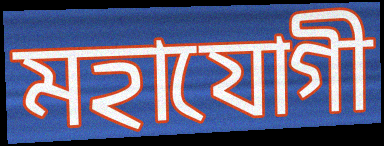
মহাযোগী